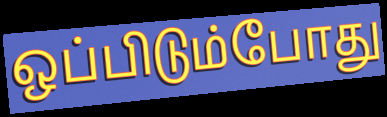
ஒப்பிடும்போது